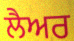
ਲੈਅਰ